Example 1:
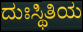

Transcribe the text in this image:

ದುಃಸ್ಥಿತಿಯ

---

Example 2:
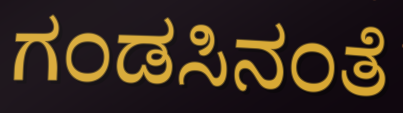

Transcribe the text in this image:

ಗಂಡಸಿನಂತೆ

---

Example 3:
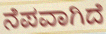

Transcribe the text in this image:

ನೆಪವಾಗಿದೆ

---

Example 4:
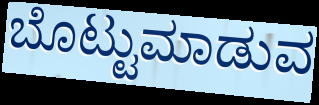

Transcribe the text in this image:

ಬೊಟ್ಟುಮಾಡುವ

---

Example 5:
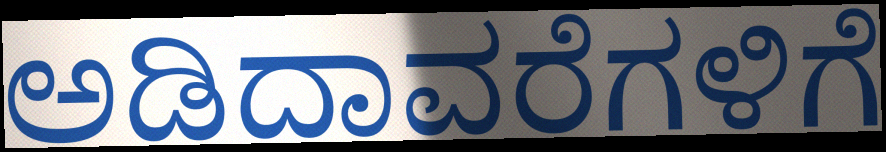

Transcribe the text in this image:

ಅಡಿದಾವರೆಗಳಿಗೆ